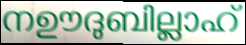
നഊദുബില്ലാഹ്